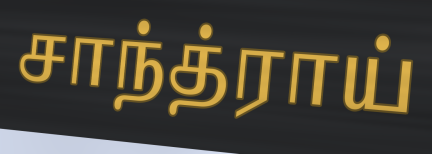
சாந்த்ராய்